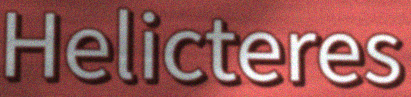
Helicteres